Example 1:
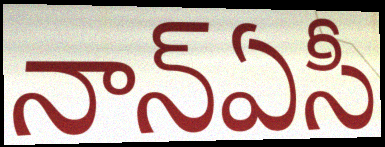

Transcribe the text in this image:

నాన్ఏసీ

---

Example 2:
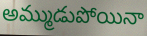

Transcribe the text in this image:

అమ్ముడుపోయినా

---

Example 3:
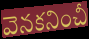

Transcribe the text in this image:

వెనకనించీ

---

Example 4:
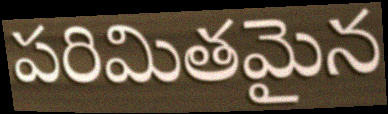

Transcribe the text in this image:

పరిమితమైన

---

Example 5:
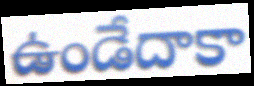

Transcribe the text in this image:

ఉండేదాకా